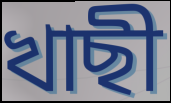
খাছী